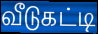
வீடுகட்டி